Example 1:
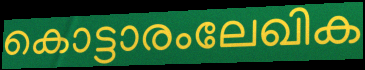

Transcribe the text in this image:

കൊട്ടാരംലേഖിക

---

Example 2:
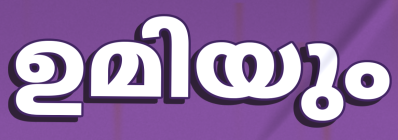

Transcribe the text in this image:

ഉമിയും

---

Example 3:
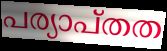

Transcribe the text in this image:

പര്യാപ്തത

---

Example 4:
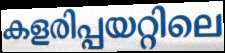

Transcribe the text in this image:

കളരിപ്പയറ്റിലെ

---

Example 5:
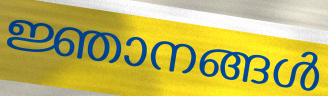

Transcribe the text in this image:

ജ്ഞാനങ്ങൾ